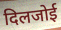
दिलजोई